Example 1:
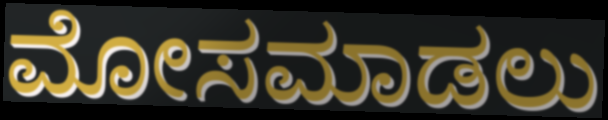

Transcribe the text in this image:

ಮೋಸಮಾಡಲು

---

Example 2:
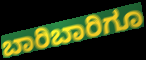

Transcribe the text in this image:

ಬಾರಿಬಾರಿಗೂ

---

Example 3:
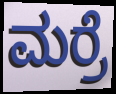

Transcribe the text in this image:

ಮರ್ರೆ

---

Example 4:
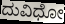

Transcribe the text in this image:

ದುವಿಧೋ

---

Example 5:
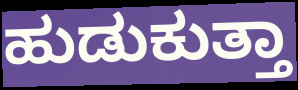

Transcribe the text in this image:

ಹುಡುಕುತ್ತಾ